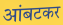
आंबटकर